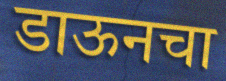
डाऊनचा